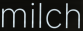
milch